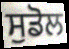
ਸੁਡੋਲ